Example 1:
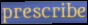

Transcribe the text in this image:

prescribe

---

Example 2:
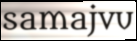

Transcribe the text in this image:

samajvu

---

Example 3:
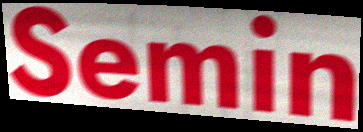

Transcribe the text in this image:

Semin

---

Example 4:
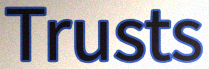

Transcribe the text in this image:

Trusts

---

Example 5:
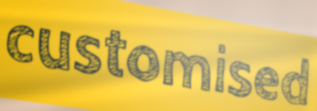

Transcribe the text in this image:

customised